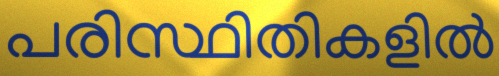
പരിസ്ഥിതികളിൽ